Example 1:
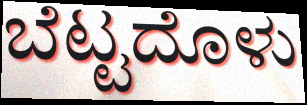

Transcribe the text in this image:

ಬೆಟ್ಟದೊಳು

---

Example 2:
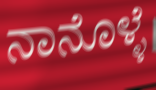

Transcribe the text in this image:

ನಾನೊಳ್ಳೆ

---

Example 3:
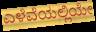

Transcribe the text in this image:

ಎಳೆವೆಯಲ್ಲಿಯೇ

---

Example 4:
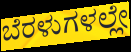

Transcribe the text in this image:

ಬೆರಳುಗಳಲ್ಲೇ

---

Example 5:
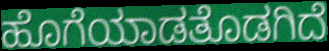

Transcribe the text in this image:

ಹೊಗೆಯಾಡತೊಡಗಿದೆ